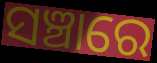
ସଞ୍ଚାରେ